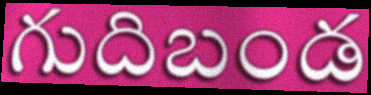
గుదిబండ